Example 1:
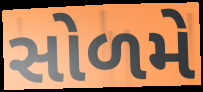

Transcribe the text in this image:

સોળમે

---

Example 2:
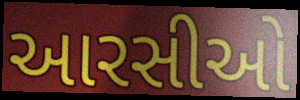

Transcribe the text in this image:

આરસીઓ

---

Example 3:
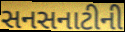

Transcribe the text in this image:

સનસનાટીની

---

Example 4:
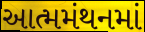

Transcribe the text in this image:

આત્મમંથનમાં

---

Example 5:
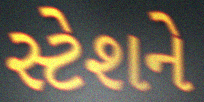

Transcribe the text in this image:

સ્ટેશને